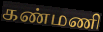
கண்மணி